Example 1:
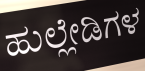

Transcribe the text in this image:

ಹುಲ್ಲೇಡಿಗಳ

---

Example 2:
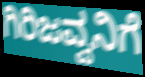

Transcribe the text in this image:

ಗಿರಿಜವ್ವನಿಗೆ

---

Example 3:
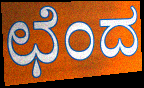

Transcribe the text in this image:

ಛೆಂದ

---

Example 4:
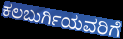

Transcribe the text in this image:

ಕಲಬುರ್ಗಿಯವರಿಗೆ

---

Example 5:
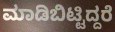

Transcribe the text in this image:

ಮಾಡಿಬಿಟ್ಟಿದ್ದರೆ